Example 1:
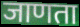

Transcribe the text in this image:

जाणता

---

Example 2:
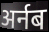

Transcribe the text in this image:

अर्नब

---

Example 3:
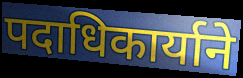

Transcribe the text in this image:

पदाधिकार्याने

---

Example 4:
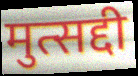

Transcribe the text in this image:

मुत्सद्दी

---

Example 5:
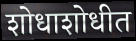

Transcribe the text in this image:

शोधाशोधीत